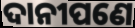
ଦାନୀପଣେ